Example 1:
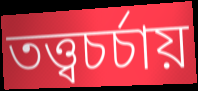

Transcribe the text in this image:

তত্ত্বচর্চায়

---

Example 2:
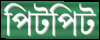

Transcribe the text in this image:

পিটপিট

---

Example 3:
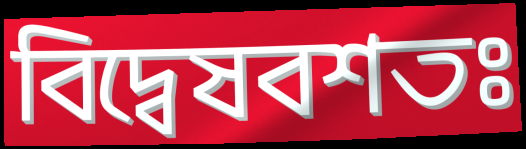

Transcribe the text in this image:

বিদ্বেষবশতঃ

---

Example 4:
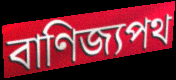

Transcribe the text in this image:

বাণিজ্যপথ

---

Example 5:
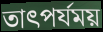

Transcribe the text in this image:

তাৎপর্যময়